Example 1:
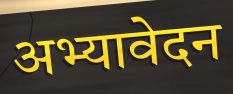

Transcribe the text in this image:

अभ्यावेदन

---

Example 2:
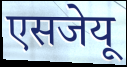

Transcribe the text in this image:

एसजेयू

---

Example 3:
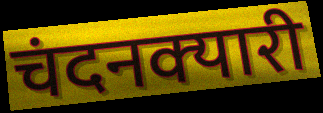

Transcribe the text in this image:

चंदनक्यारी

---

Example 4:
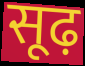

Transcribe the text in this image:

सूढ़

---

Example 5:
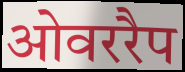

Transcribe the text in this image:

ओवररैप